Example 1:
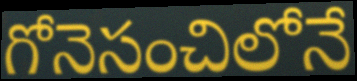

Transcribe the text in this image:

గోనెసంచిలోనే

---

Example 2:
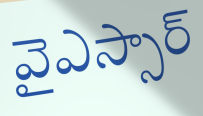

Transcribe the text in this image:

వైఎస్సార్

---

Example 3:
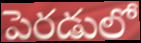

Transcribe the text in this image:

పెరడులో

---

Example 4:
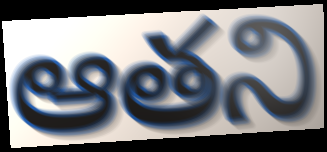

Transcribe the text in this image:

ఆతని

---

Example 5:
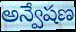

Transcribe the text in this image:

అన్వేషణ